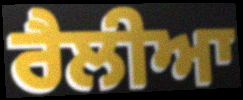
ਰੈਲੀਆ